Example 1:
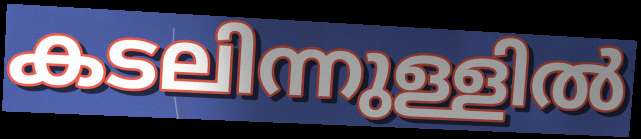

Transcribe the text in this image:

കടലിന്നുള്ളിൽ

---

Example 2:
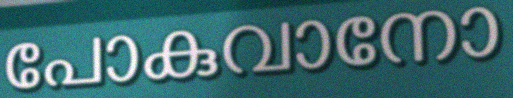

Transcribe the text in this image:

പോകുവാനോ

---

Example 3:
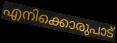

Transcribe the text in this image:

എനിക്കൊരുപാട്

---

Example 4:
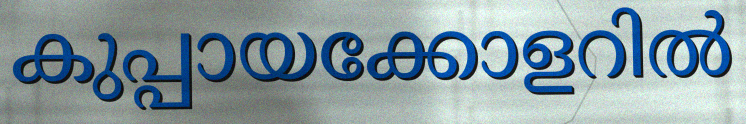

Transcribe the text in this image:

കുപ്പായക്കോളറിൽ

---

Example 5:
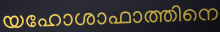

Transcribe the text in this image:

യഹോശാഫാത്തിനെ